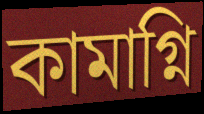
কামাগ্নি